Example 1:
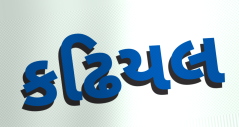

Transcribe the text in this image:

કઢિયલ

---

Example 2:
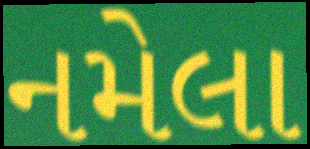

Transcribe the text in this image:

નમેલા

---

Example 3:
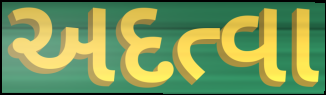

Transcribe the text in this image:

અદત્વા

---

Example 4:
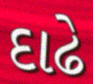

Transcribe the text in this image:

દાઢે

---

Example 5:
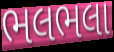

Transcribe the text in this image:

ભલભલા